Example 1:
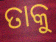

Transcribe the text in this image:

ତାକୁ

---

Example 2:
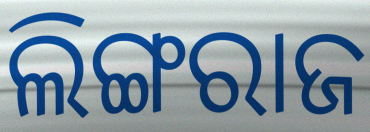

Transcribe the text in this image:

ଲିଙ୍ଗରାଜ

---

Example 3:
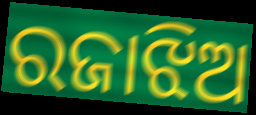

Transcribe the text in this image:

ରଜାଝିଅ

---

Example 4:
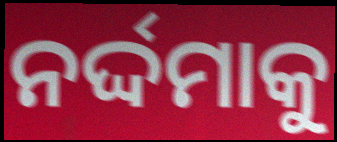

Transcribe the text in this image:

ନର୍ଦ୍ଦମାକୁ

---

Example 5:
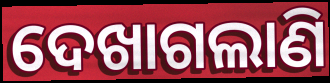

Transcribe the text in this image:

ଦେଖାଗଲାଣି